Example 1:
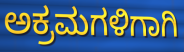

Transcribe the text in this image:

ಅಕ್ರಮಗಳಿಗಾಗಿ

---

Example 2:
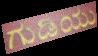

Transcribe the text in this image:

ಗುಡಿಯು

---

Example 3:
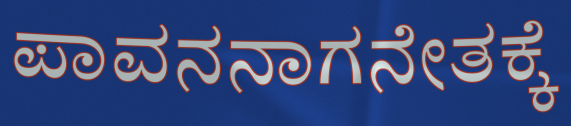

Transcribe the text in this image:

ಪಾವನನಾಗನೇತಕ್ಕೆ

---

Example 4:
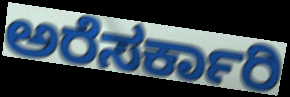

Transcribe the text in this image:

ಅರೆಸರ್ಕಾರಿ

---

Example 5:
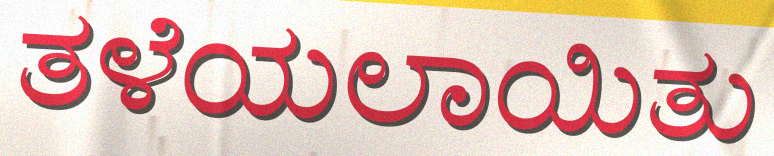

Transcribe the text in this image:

ತಳೆಯಲಾಯಿತು